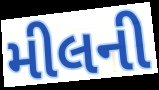
મીલની